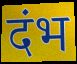
दंभ